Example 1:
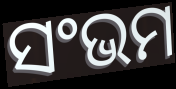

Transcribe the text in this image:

ସଂଭମ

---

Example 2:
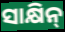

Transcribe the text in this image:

ସାକ୍ଷିନ୍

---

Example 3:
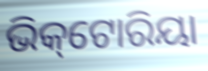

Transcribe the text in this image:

ଭିକ୍‌ଟୋରିୟା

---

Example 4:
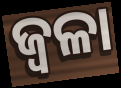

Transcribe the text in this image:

ଜ୍ୱଳା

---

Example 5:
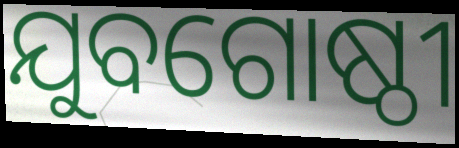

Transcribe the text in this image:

ଯୁବଗୋଷ୍ଠୀ